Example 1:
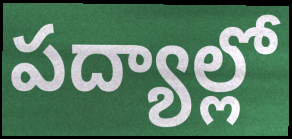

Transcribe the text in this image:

పద్యాల్లో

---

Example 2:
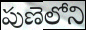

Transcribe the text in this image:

పుణెలోని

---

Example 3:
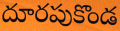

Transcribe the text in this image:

దూరపుకొండ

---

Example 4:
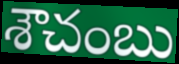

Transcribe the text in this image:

శౌచంబు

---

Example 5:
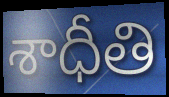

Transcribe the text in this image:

శాధీతి